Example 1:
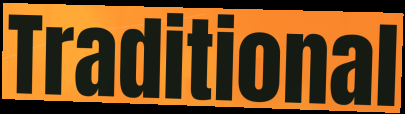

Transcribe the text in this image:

Traditional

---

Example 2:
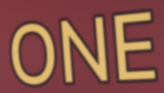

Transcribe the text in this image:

ONE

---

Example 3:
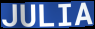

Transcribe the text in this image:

JULIA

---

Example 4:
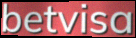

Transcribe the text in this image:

betvisa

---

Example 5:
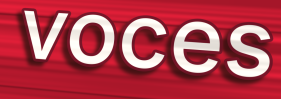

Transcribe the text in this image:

voces